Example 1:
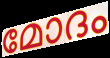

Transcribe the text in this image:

മോദം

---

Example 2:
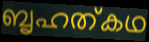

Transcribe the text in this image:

ബൃഹത്കഥ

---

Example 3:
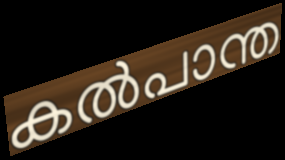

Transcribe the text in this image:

കൽപാന്ത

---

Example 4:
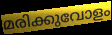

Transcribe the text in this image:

മരിക്കുവോളം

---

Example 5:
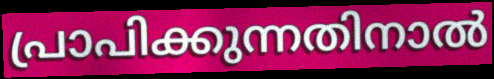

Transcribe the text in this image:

പ്രാപിക്കുന്നതിനാൽ